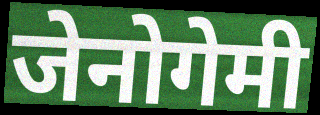
जेनोगेमी